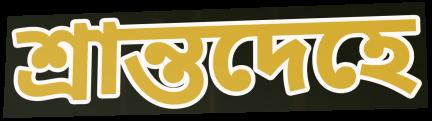
শ্রান্তদেহে